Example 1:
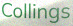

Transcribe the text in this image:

Collings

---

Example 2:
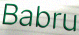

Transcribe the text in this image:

Babru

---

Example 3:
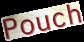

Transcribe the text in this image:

Pouch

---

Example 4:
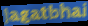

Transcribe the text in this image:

Jagatbhai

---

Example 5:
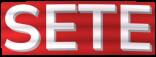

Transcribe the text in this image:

SETE